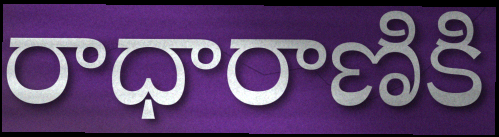
రాధారాణికి